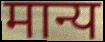
मान्य